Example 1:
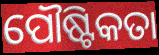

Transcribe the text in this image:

ପୌଷ୍ଟିକତା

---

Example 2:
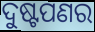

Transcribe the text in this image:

ଦୁଷ୍ଟପଣର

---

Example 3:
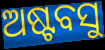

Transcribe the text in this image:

ଅଷ୍ଟବସୁ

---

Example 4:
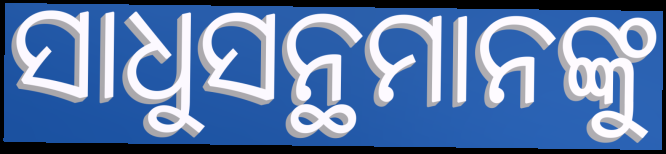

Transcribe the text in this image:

ସାଧୁସନ୍ଥମାନଙ୍କୁ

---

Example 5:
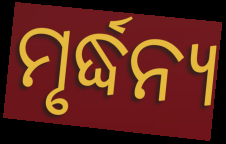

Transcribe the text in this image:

ମୃର୍ଦ୍ଧନ୍ୟ